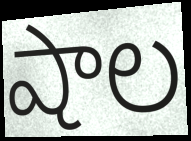
షాల